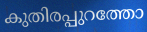
കുതിരപ്പുറത്തോ